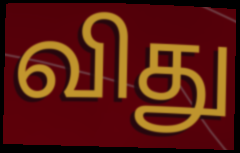
விது